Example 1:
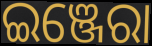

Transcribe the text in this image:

ଇଞ୍ଜେରା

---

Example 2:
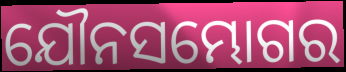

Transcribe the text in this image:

ଯୌନସମ୍ଭୋଗର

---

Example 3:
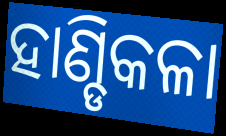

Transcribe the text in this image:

ହାଣ୍ଡିକଳା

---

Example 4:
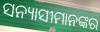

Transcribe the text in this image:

ସନ୍ୟାସୀମାନଙ୍କର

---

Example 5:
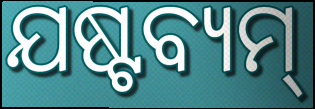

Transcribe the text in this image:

ଯଷ୍ଟବ୍ୟମ୍